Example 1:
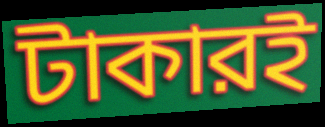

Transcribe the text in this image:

টাকারই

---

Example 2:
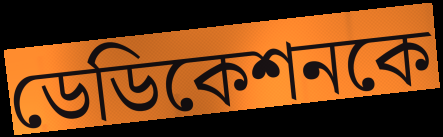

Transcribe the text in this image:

ডেডিকেশনকে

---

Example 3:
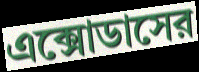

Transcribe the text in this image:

এক্সোডাসের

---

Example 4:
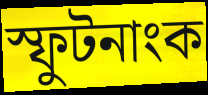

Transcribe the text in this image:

স্ফুটনাংক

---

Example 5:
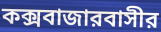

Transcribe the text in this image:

কক্সবাজারবাসীর